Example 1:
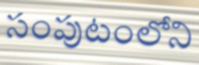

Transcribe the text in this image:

సంపుటంలోని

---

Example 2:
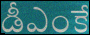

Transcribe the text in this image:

డీఎంకే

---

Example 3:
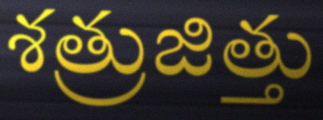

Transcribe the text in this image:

శత్రుజిత్తు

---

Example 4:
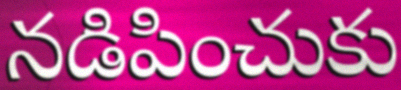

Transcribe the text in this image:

నడిపించుకు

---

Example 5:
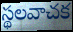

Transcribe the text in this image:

స్థలవాచక